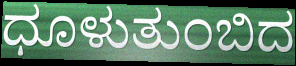
ಧೂಳುತುಂಬಿದ